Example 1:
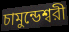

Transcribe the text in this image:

চামুন্ডেশ্বরী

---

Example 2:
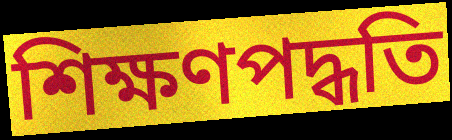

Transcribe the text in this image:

শিক্ষণপদ্ধতি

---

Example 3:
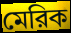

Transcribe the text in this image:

মেরিক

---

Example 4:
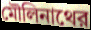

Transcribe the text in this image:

মৌলিনাথের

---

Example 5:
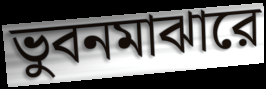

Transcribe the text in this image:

ভুবনমাঝারে